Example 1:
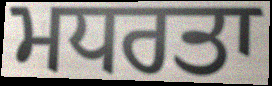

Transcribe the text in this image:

ਮਧਰਤਾ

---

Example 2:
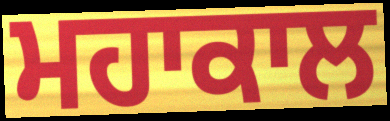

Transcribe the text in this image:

ਮਹਾਕਾਲ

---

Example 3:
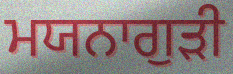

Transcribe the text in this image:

ਮਯਨਾਗੁੜੀ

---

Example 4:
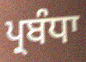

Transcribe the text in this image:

ਪ੍ਰਬੰਧਾ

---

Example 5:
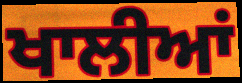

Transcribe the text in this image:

ਖਾਲੀਆਂ